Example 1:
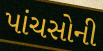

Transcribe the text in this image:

પાંચસોની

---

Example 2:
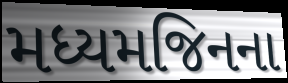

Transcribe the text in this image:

મધ્યમજિનના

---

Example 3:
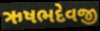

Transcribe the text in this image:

ઋષભદેવજી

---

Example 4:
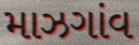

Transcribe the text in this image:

માઝગાંવ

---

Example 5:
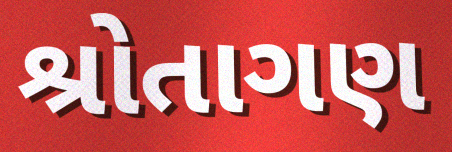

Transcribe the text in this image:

શ્રોતાગણ